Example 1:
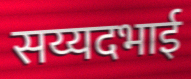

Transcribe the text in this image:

सय्यदभाई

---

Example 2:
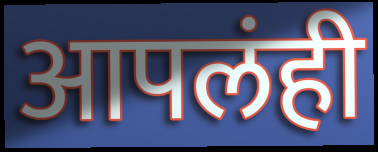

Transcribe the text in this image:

आपलंही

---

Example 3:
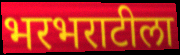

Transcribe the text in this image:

भरभराटीला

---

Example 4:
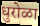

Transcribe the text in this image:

धुरोळा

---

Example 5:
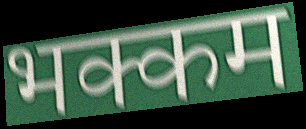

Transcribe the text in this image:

भक्‍कम